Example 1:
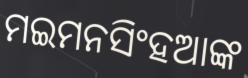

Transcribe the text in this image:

ମଇମନସିଂହଆଙ୍କ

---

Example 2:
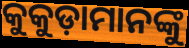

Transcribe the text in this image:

କୁକୁଡ଼ାମାନଙ୍କୁ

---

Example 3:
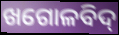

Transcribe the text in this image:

ଖଗୋଳବିଦ୍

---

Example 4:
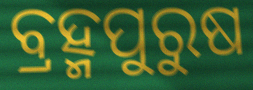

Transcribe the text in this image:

ବ୍ରହ୍ମପୁରୁଷ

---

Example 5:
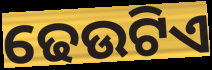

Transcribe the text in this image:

ଢେଉଟିଏ